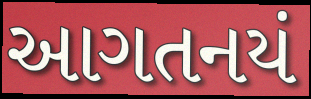
આગતનયં